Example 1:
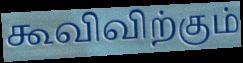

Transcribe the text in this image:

கூவிவிற்கும்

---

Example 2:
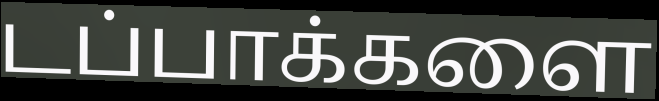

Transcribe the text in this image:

டப்பாக்களை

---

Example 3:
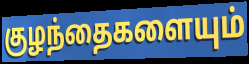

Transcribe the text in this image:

குழந்தைகளையும்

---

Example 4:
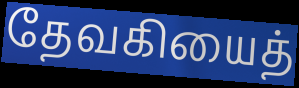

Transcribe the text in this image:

தேவகியைத்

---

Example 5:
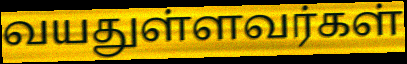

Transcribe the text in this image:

வயதுள்ளவர்கள்